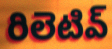
రిలెటివ్